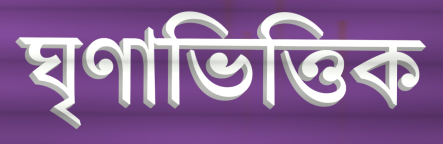
ঘৃণাভিত্তিক